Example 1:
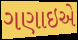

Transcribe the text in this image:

ગણાઇએ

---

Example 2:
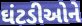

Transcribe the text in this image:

ઘંટડીઓને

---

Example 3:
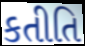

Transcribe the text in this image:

કતીતિ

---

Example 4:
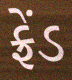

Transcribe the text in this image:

ફ્રેંડ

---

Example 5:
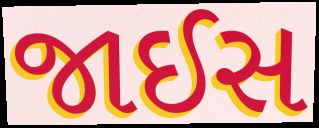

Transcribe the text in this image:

જાઈસ